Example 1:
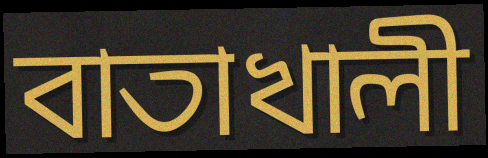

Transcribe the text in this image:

বাতাখালী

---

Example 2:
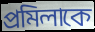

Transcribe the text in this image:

প্রমিলাকে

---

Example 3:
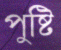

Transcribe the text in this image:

পুষ্টি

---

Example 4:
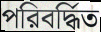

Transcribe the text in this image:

পরিবর্দ্ধিত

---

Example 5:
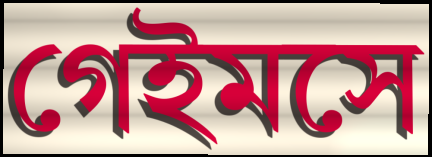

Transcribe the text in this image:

গেইমসে